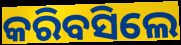
କରିବସିଲେ